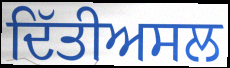
ਦਿੱਤੀਅਸਲ